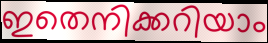
ഇതെനിക്കറിയാം